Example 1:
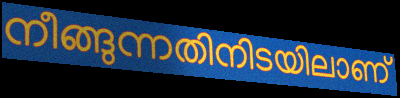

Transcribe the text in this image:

നീങ്ങുന്നതിനിടയിലാണ്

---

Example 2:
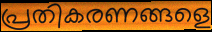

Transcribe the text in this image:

പ്രതികരണങ്ങളെ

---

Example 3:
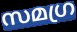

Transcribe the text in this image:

സമഗ്ര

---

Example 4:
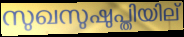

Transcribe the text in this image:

സുഖസുഷുപ്തിയില്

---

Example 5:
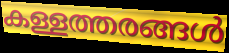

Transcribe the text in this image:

കള്ളത്തരങ്ങൾ